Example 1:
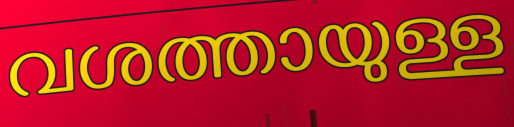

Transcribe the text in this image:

വശത്തായുള്ള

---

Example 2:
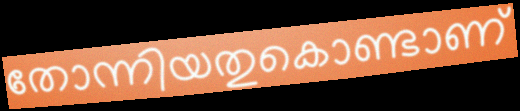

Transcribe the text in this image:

തോന്നിയതുകൊണ്ടാണ്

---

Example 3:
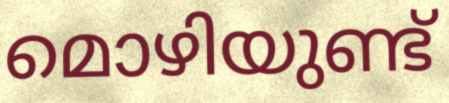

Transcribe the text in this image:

മൊഴിയുണ്ട്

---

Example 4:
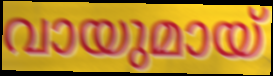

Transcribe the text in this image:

വായുമായ്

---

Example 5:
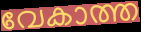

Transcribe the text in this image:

വേകാത്ത